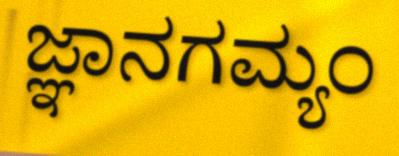
ಜ್ಞಾನಗಮ್ಯಂ